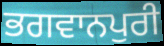
ਭਗਵਾਨਪੁਰੀ